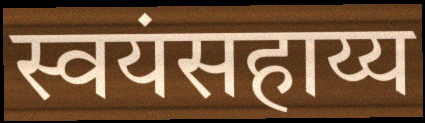
स्वयंसहाय्य